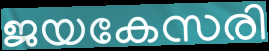
ജയകേസരി